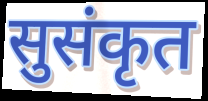
सुसंकृत